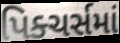
પિક્ચર્સમાં